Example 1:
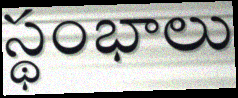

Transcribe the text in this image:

స్థంభాలు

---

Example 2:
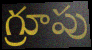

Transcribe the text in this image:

గ్రూపు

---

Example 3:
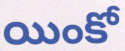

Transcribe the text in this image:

యింకో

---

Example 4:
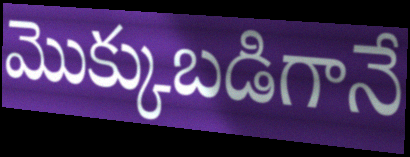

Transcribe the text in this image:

మొక్కుబడిగానే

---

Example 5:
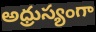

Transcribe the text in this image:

అధ్రుస్యంగా